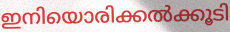
ഇനിയൊരിക്കൽക്കൂടി